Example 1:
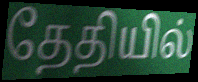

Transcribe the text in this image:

தேதியில்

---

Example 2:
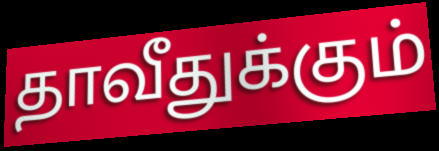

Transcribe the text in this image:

தாவீதுக்கும்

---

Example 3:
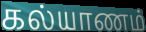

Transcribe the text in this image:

கல்யாணம்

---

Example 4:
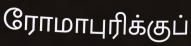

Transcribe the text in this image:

ரோமாபுரிக்குப்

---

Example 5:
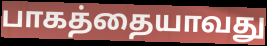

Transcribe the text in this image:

பாகத்தையாவது